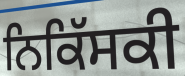
ਨਿਕਿੱਸਕੀ